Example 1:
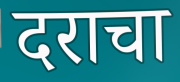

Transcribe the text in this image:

दराचा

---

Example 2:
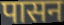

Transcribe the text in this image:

पासन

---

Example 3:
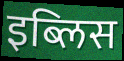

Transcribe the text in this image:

इब्लिस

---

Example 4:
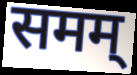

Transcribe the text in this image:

समम्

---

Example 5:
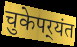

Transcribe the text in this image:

चुकेपर्यंत